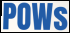
POWs